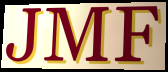
JMF